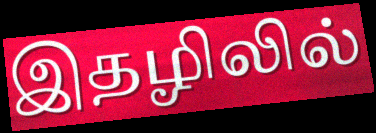
இதழிலில்